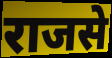
राजसे